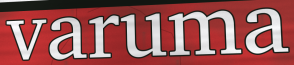
varuma